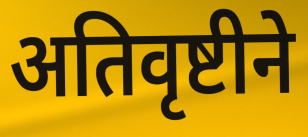
अतिवृष्टीने